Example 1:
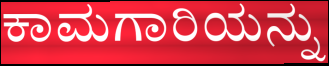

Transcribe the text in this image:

ಕಾಮಗಾರಿಯನ್ನು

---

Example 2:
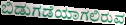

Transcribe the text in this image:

ಬಿಡುಗಡೆಯಾಗಲಿರುವ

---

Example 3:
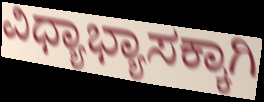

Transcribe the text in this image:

ವಿಧ್ಯಾಭ್ಯಾಸಕ್ಕಾಗಿ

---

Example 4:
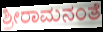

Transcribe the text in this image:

ಶ್ರೀರಾಮನಂತೆ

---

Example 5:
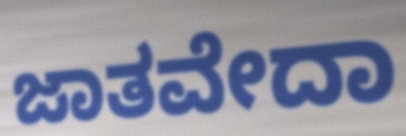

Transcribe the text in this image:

ಜಾತವೇದಾ